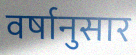
वर्षानुसार